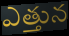
ఎత్తున